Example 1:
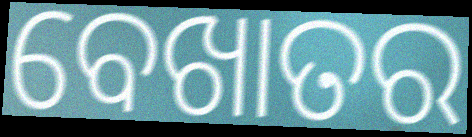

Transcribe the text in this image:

ବେଖାତର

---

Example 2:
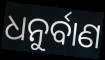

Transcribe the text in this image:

ଧନୁର୍ବାଣ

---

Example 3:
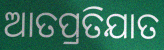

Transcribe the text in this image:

ଆତପ୍ରତିଯାତ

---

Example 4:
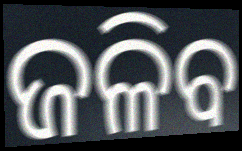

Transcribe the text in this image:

ଜଳିବ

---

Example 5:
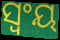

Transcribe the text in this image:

ସ୍ୱଂୟ